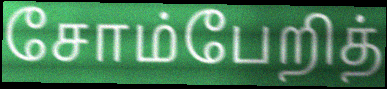
சோம்பேறித்